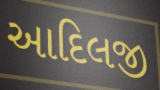
આદિલજી